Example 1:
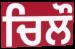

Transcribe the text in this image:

ਚਿਲੌ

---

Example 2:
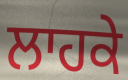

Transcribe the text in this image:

ਲਾਹਕੇ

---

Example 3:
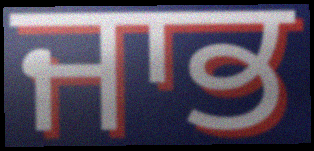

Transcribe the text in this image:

ਜਾਭ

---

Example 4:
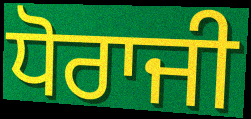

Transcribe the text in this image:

ਧੋਰਾਜੀ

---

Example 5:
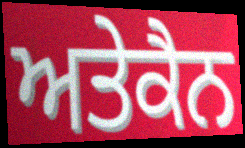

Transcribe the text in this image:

ਅਤੇਕੈਨ